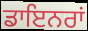
ਡਾਇਨਰਾਂ